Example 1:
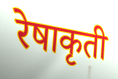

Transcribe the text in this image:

रेषाकृती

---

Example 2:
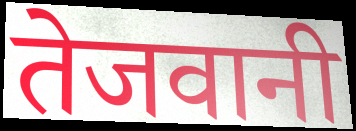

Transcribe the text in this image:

तेजवानी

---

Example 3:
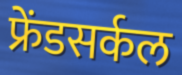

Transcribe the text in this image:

फ्रेंडसर्कल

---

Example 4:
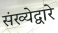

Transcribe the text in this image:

संख्येद्वारे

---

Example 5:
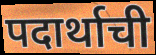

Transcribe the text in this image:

पदार्थाची